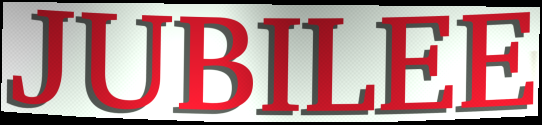
JUBILEE